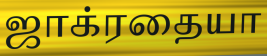
ஜாக்ரதையா